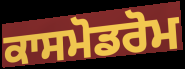
ਕਾਸਮੋਡਰੋਮ